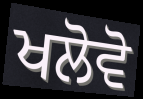
ਖਲੋਵੋ